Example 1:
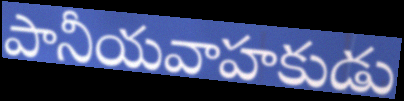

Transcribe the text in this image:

పానీయవాహకుడు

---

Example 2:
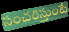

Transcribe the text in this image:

సంచరిస్తుంటే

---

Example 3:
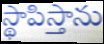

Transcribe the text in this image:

స్థాపిస్తాను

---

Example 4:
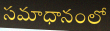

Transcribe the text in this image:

సమాధానంలో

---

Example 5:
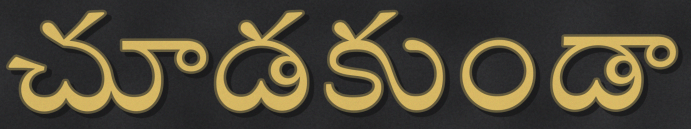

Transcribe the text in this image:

చూడకుండా